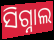
ସିଗ୍ନାଲ